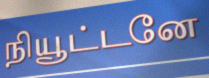
நியூட்டனே